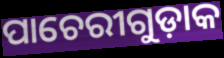
ପାଚେରୀଗୁଡ଼ାକ